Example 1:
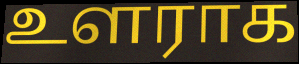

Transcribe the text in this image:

உளராக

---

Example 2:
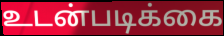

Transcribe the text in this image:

உடன்படிக்கை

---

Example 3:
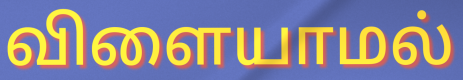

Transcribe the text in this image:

விளையாமல்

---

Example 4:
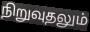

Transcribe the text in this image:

நிறுவுதலும்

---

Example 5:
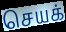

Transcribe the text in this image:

செயக்